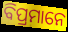
ବିପ୍ରମାନେ